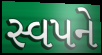
સ્વપને